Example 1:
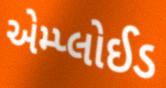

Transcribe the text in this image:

એમ્પ્લોઈડ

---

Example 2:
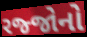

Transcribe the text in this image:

રજ્જોનો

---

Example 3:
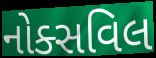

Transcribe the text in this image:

નોક્સવિલ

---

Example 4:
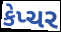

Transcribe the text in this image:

કેપ્ચર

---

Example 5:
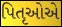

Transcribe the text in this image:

પિતૃઓએ